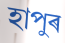
হাপুৰ